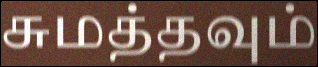
சுமத்தவும்